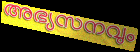
അഭ്യസനവും